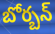
బోర్బన్